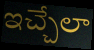
ఇచ్చేలా